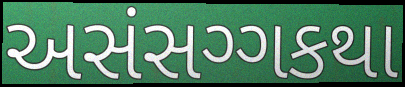
અસંસગ્ગકથા